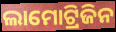
ଲାମୋଟ୍ରିଜିନ